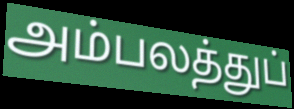
அம்பலத்துப்